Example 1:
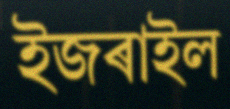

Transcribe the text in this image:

ইজৰাইল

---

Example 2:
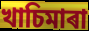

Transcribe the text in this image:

খাচিমাৰা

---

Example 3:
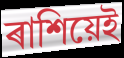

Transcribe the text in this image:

ৰাশিয়েই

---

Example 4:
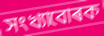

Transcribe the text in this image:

সংখ্যাবোৰক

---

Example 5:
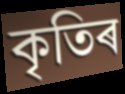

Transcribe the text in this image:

কৃতিৰ